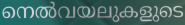
നെൽവയലുകളുടെ